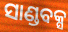
ସାଣ୍ଡବକ୍ସ